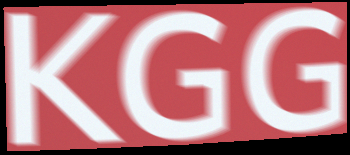
KGG